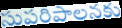
సుపరిపాలనకు